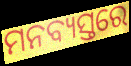
ମନବ୍ୟସ୍ତରେ